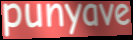
punyave